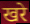
खरे